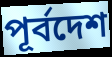
পূর্বদেশ